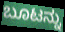
ಬೂಟನ್ನು